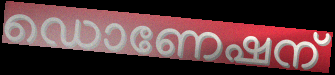
ഡൊണേഷന്